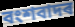
বংশবাদৰ